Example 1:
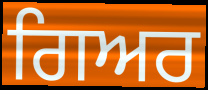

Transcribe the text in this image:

ਗਿਅਰ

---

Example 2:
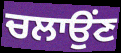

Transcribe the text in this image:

ਚਲਾਉਂਣ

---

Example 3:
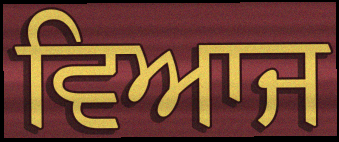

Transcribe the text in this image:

ਵਿਆਜ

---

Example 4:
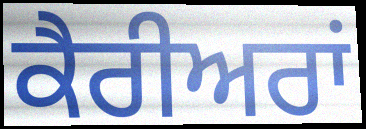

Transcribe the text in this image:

ਕੈਰੀਅਰਾਂ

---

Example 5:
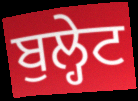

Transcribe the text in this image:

ਬੁਲ੍ਹੇਟ